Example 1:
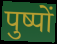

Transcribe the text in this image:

पुष्पों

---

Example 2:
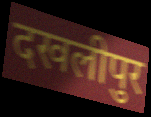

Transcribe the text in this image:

दखलीपुर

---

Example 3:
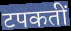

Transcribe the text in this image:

टपकतीं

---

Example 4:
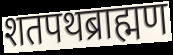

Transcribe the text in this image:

शतपथब्राह्मण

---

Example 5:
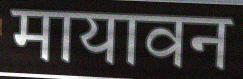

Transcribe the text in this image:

मायावन